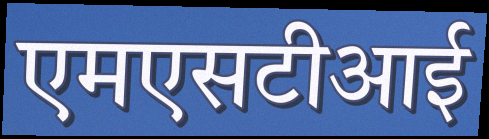
एमएसटीआई